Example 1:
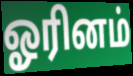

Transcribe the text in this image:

ஓரினம்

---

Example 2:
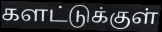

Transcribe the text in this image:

களட்டுக்குள்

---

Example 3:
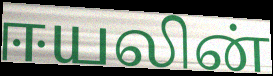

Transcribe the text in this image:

ஈயலின்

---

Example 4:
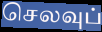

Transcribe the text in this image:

செலவுப்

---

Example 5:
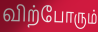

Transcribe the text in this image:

விற்போரும்